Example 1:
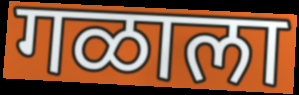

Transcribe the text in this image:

गळाला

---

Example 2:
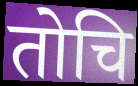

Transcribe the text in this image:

तोचि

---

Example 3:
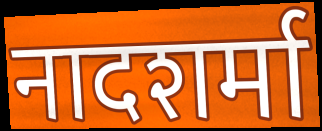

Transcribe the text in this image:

नादशर्मा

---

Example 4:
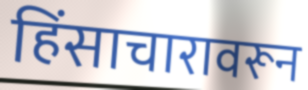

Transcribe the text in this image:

हिंसाचारावरून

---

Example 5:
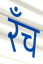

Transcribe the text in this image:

रँच